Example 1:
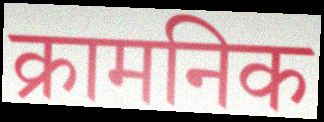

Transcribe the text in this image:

क्रामनिक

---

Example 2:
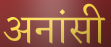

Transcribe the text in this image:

अनांसी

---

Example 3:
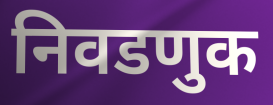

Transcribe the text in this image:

निवडणुक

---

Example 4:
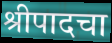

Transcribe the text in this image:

श्रीपादचा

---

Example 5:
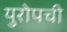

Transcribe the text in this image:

युरोपची